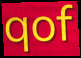
qof